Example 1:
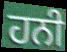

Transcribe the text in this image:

ਹਨੀ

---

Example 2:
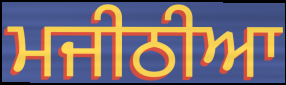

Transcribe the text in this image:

ਮਜੀਠੀਆ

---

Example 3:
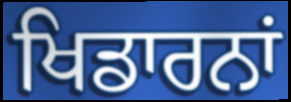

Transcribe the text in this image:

ਖਿਡਾਰਨਾਂ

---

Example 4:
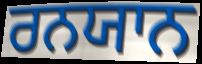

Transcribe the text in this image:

ਰਨਯਾਨ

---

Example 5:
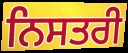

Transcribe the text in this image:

ਨਿਸਤਰੀ